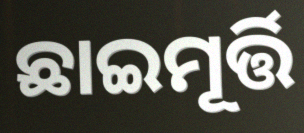
ଛାଇମୂର୍ତ୍ତି